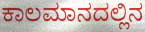
ಕಾಲಮಾನದಲ್ಲಿನ